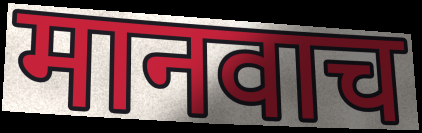
मानवाच